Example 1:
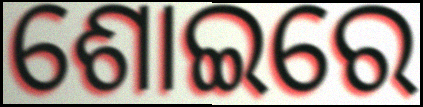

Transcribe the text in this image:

ଶୋଇରେ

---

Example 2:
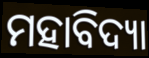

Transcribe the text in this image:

ମହାବିଦ୍ୟା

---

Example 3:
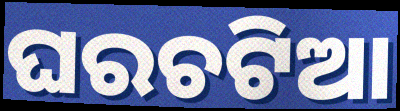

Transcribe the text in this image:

ଘରଚଟିଆ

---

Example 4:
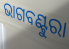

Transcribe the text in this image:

ଭାଗବଣ୍ଟୁରା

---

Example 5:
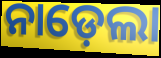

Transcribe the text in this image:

ନାଡ଼େଲା